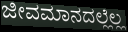
ಜೀವಮಾನದಲ್ಲೆಲ್ಲ